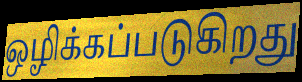
ஒழிக்கப்படுகிறது